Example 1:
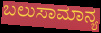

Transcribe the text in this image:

ಬಲುಸಾಮಾನ್ಯ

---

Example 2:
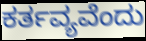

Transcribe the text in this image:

ಕರ್ತವ್ಯವೆಂದು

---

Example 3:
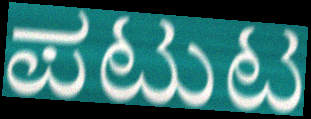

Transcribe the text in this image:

ಪಟುಟ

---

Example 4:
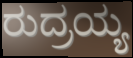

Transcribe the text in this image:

ರುದ್ರಯ್ಯ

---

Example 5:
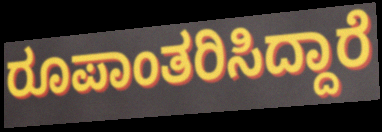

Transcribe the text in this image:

ರೂಪಾಂತರಿಸಿದ್ದಾರೆ